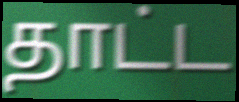
தாட்ட